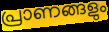
പ്രാണങ്ങളും